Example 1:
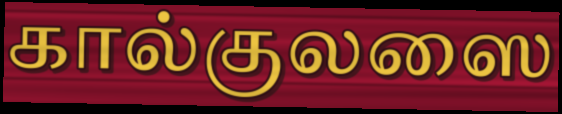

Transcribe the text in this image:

கால்குலஸை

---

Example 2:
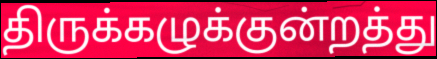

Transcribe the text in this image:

திருக்கழுக்குன்றத்து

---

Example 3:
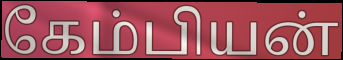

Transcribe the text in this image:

கேம்பியன்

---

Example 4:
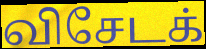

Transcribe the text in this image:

விசேடக்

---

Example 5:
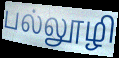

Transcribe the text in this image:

பல்லூழி